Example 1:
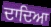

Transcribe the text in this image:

ਦਾਦਿਆ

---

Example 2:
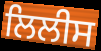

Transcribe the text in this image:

ਲਿਲੀਸ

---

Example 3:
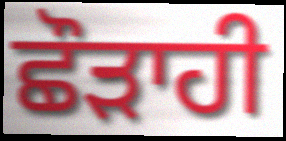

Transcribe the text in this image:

ਛੌੜਾਹੀ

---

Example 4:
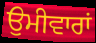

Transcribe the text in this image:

ਉਮੀਵਾਰਾਂ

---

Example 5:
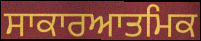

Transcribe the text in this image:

ਸਾਕਾਰਆਤਮਿਕ